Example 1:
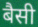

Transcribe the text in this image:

बैसी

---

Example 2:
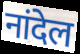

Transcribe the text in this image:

नांदेल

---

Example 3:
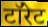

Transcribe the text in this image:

टॉरेट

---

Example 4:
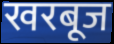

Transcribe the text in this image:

खरबूज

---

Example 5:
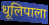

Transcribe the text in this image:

धूलिपाला